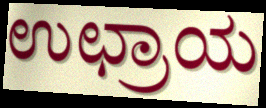
ಉಛ್ರಾಯ